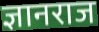
ज्ञानराज